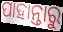
ପାହାନ୍ତାରୁ